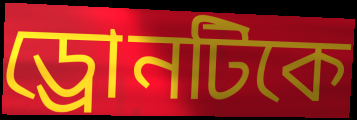
ড্রোনটিকে